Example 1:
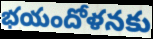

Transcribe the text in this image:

భయందోళనకు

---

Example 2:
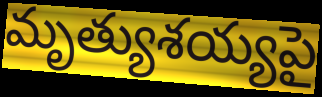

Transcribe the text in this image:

మృత్యుశయ్యపై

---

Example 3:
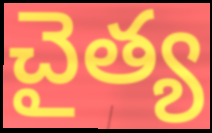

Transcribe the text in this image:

చైత్య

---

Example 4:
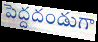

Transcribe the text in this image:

పెద్దదండుగా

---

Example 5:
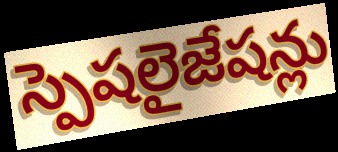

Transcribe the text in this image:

స్పెషలైజేషన్లు